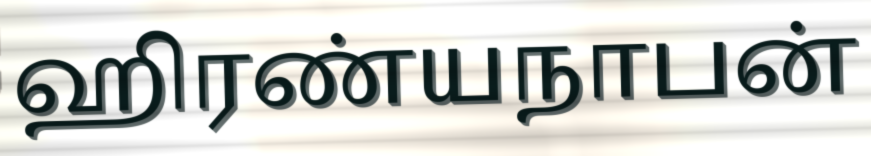
ஹிரண்யநாபன்